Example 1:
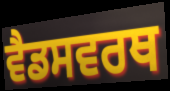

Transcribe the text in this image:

ਵੈਡਸਵਰਥ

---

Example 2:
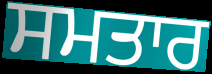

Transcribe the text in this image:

ਸਮਤਾਰ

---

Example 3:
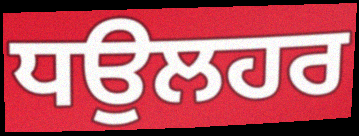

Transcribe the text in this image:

ਧਉਲਹਰ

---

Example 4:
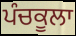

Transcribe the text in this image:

ਪੰਚਕੂਲਾ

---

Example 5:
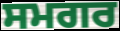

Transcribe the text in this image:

ਸਮਗਰ